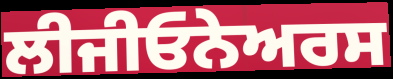
ਲੀਜੀਓਨੇਅਰਸ